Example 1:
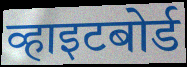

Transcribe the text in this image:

व्हाइटबोर्ड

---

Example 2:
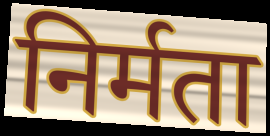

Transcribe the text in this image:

निर्मता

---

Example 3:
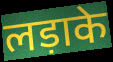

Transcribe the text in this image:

लड़ाके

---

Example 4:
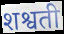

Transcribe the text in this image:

शश्वती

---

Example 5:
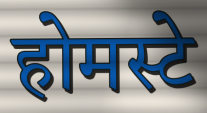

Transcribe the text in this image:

होमस्टे